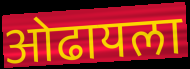
ओढायला